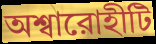
অশ্বারোহীটি